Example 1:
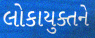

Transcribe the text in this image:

લોકાયુક્તને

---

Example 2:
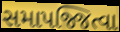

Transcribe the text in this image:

સમાપજ્જિત્વા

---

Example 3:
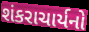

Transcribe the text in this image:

શંકરાચાર્યનો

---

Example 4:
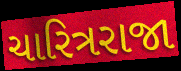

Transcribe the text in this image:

ચારિત્રરાજા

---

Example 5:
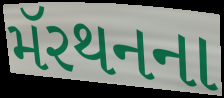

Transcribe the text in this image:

મૅરથનના